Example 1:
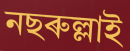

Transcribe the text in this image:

নছৰুল্লাই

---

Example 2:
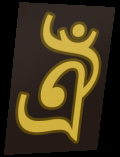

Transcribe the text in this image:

ঐঁ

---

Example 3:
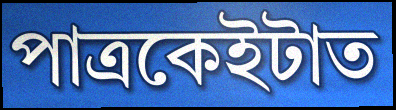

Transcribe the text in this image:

পাত্ৰকেইটাত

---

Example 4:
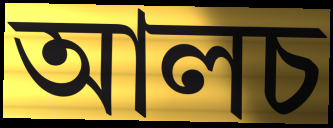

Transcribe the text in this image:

আলচ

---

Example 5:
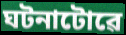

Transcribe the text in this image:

ঘটনাটোৱে